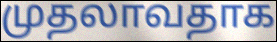
முதலாவதாக